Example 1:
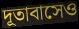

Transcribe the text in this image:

দূতাবাসেও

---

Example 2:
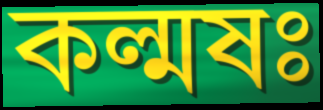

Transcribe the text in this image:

কল্মষঃ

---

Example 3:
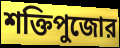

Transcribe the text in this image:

শক্তিপুজোর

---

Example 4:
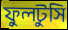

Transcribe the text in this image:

ফুলটুসি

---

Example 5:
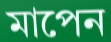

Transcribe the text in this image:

মাপেন